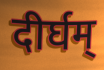
दीर्घम्